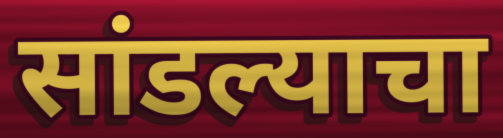
सांडल्याचा